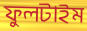
ফুলটাইম